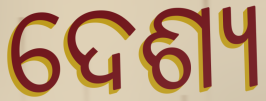
ଦେଶ୍ୟ